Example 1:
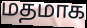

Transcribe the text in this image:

மதமாக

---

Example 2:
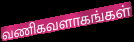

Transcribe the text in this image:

வணிகவளாகங்கள்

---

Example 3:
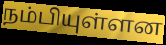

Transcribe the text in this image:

நம்பியுள்ளன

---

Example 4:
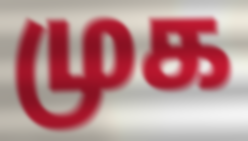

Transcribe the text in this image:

முக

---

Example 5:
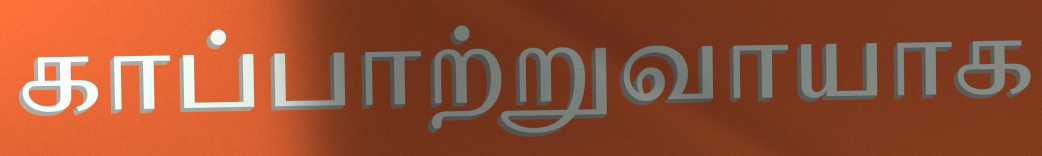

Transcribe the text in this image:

காப்பாற்றுவாயாக